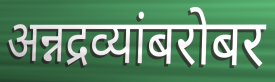
अन्नद्रव्यांबरोबर